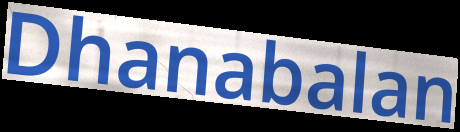
Dhanabalan